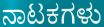
ನಾಟಕಗಳು